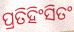
ପ୍ରତିହିଂସିତଂ